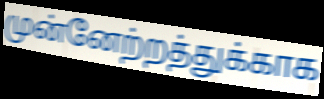
முன்னேற்றத்துக்காக